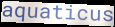
aquaticus